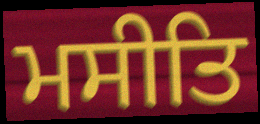
ਮਸੀਤਿ